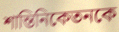
শান্তিনিকেতনকে